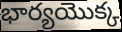
భార్యయొక్క